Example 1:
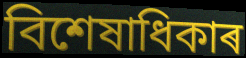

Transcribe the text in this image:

বিশেষাধিকাৰ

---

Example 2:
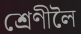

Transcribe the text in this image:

শ্ৰেণীলৈ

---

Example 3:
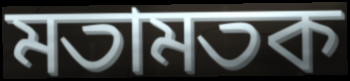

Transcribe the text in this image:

মতামতক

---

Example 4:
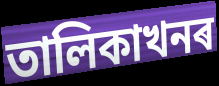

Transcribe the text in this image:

তালিকাখনৰ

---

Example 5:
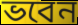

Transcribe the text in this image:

ভবেন